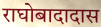
राघोबादादास